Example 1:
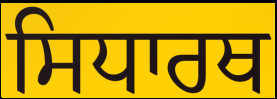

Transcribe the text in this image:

ਸਿਧਾਰਥ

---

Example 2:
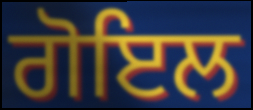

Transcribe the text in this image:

ਗੋਇਲ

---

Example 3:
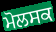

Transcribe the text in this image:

ਮੋਲਸਕ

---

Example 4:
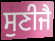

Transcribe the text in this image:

ਸੁਣੀਜੈ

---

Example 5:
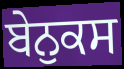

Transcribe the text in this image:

ਬੇਨੁਕਸ